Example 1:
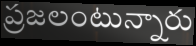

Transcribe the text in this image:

ప్రజలంటున్నారు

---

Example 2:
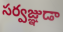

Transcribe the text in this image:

సర్వజ్ఞుడా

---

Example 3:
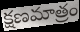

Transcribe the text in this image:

క్షణమాత్రం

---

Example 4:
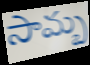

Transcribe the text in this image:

సామ్బ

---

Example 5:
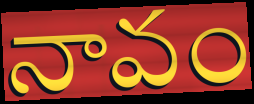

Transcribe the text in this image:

నావం